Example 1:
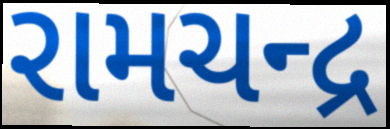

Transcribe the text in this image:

રામચન્દ્ર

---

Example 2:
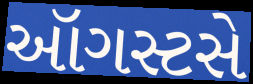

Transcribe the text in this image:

ઑગસ્ટસે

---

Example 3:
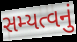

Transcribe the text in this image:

સમ્યત્વનું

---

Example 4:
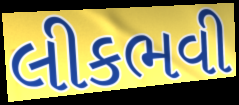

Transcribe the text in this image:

લીકભવી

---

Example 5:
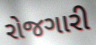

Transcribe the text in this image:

રોજગારી